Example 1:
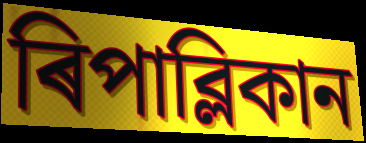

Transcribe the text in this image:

ৰিপাব্লিকান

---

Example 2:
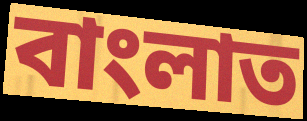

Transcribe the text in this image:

বাংলাত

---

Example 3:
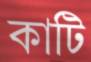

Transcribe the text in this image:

কাটি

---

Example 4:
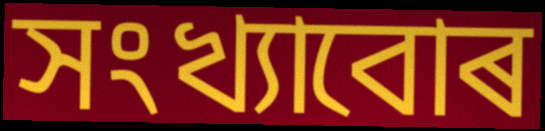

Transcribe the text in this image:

সংখ্যাবোৰ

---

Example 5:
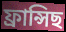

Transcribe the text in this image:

ফ্ৰান্সিছ